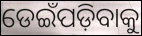
ଡେଇଁପଡ଼ିବାକୁ